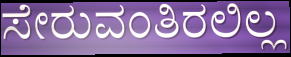
ಸೇರುವಂತಿರಲಿಲ್ಲ